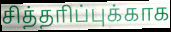
சித்தரிப்புக்காக